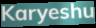
Karyeshu